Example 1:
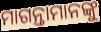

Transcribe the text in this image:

ମାଗନ୍ତାମାନଙ୍କୁ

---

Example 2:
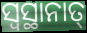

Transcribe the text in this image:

ସ୍ଵସ୍ଥାନାତ୍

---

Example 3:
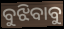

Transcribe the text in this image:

ବୁଝିବାବୁ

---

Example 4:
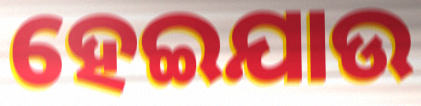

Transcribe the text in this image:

ହେଇଯାଉ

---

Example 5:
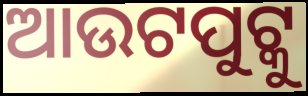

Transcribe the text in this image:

ଆଉଟପୁଟ୍କୁ